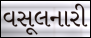
વસૂલનારી